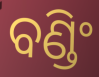
ବଣ୍ଡିଂ